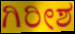
ಗಿರೀಶ